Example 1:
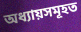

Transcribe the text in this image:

অধ্যায়সমূহত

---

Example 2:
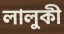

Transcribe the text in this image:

লালুকী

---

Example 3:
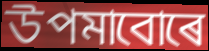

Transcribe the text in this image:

উপমাবোৰে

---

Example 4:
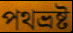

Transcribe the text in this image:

পথভ্ৰষ্ট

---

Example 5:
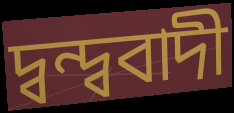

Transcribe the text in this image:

দ্বন্দ্ববাদী